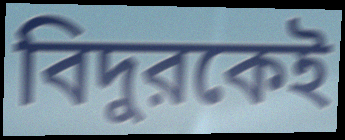
বিদুরকেই